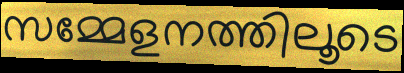
സമ്മേളനത്തിലൂടെ